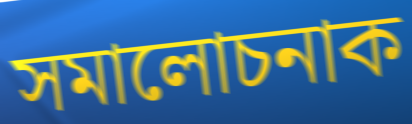
সমালোচনাক